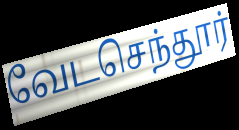
வேடசெந்தூர்